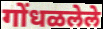
गोंधळलेले